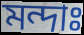
মন্দাঃ